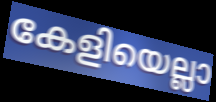
കേളിയെല്ലാ